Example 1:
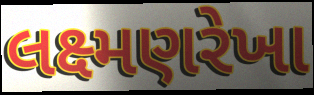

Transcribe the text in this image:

લક્ષ્મણરેખા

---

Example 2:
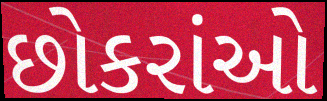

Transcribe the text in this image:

છોકરાંઓ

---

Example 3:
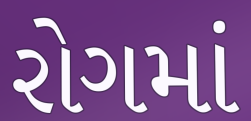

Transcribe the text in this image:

રોગમાં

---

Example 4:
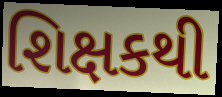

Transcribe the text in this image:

શિક્ષકથી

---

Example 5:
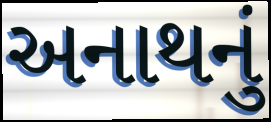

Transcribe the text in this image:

અનાથનું